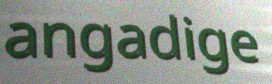
angadige